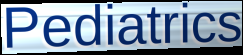
Pediatrics